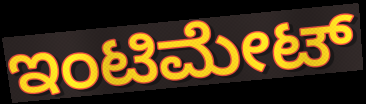
ಇಂಟಿಮೇಟ್